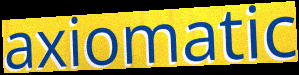
axiomatic